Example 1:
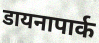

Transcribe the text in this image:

डायनापार्क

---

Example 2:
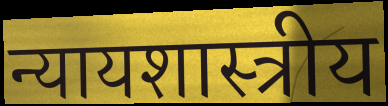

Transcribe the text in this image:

न्यायशास्त्रीय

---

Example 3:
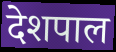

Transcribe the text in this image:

देशपाल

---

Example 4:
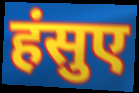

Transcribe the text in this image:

हंसुए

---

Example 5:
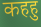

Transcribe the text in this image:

कहहु